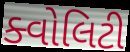
ક્વોલિટી